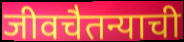
जीवचैतन्याची